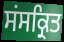
ਸਂਸਕ੍ਰਿਤ